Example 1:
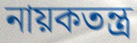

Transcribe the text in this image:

নায়কতন্ত্র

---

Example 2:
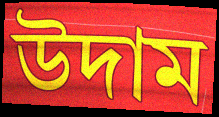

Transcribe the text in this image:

উদাম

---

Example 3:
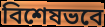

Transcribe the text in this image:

বিশেষভবে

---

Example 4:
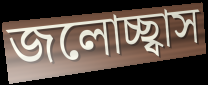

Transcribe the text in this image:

জলোচ্ছ্বাস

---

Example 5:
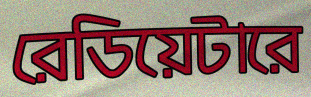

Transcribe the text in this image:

রেডিয়েটারে